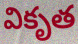
వికృత